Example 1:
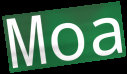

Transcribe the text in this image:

Moa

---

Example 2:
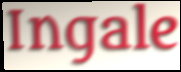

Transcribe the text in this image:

Ingale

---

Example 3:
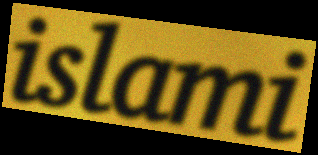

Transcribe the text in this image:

islami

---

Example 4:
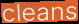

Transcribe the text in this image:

cleans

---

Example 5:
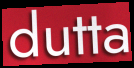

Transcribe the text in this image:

dutta